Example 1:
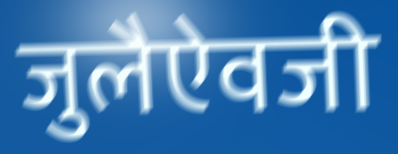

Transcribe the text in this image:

जुलैऐवजी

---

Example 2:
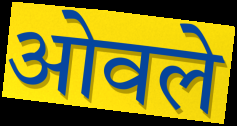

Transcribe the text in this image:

ओवले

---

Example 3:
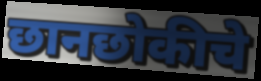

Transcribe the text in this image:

छानछोकीचे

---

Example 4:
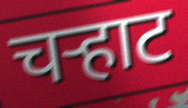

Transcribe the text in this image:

चऱ्हाट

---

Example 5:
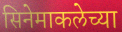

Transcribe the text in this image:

सिनेमाकलेच्या